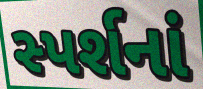
સ્પર્શનાં